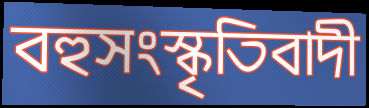
বহুসংস্কৃতিবাদী